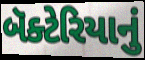
બૅક્ટેરિયાનું